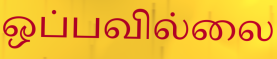
ஒப்பவில்லை